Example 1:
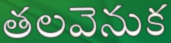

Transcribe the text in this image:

తలవెనుక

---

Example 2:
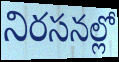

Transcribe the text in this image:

నిరసనల్లో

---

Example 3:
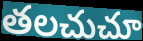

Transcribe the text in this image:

తలచుచూ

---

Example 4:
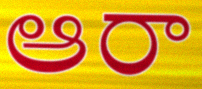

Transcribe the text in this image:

ఆరా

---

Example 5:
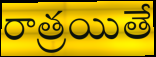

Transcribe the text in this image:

రాత్రయితే